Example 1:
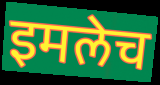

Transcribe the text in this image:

इमलेच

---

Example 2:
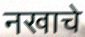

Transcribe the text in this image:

नखाचे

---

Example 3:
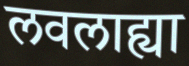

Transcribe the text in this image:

लवलाह्या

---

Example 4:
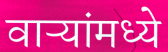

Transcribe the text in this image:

वाऱ्यांमध्ये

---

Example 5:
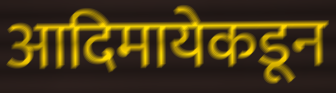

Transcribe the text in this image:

आदिमायेकडून